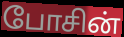
போசின்